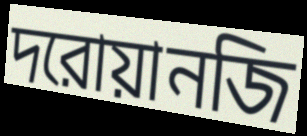
দরোয়ানজি